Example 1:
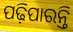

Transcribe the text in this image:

ପଢ଼ିପାରନ୍ତି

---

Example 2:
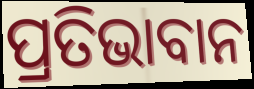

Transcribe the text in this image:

ପ୍ରତିଭାବାନ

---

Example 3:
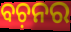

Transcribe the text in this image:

ବଚ଼ନର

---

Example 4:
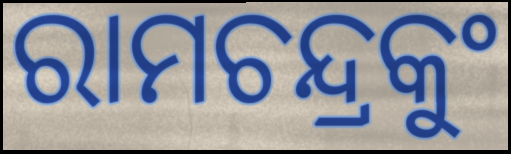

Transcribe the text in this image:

ରାମଚନ୍ଦ୍ରକୁଂ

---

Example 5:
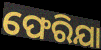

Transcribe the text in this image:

ଫେରିଯା